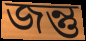
জন্তু